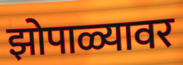
झोपाळ्यावर